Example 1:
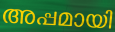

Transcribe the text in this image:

അപ്പമായി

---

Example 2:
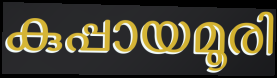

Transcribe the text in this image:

കുപ്പായമൂരി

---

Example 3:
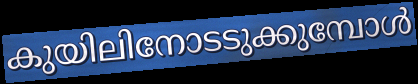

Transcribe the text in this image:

കുയിലിനോടടുക്കുമ്പോൾ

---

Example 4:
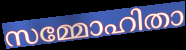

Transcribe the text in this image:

സമ്മോഹിതാ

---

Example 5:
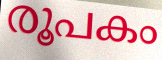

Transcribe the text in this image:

രൂപകം